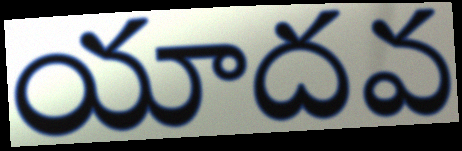
యాదవ